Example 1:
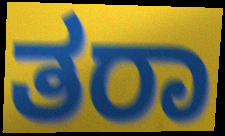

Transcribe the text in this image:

ತರಾ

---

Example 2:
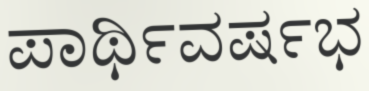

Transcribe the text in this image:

ಪಾರ್ಥಿವರ್ಷಭ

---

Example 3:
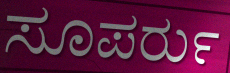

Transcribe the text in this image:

ಸೂಪರ್ರು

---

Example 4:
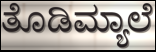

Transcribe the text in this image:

ತೊಡಿಮ್ಯಾಲೆ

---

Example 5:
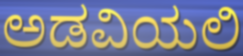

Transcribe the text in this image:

ಅಡವಿಯಲಿ